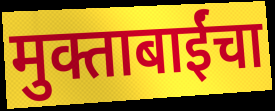
मुक्ताबाईंचा